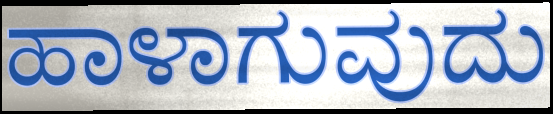
ಹಾಳಾಗುವುದು